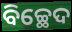
ବିଚ୍ଛେଦ